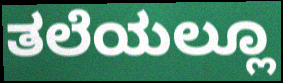
ತಲೆಯಲ್ಲೂ